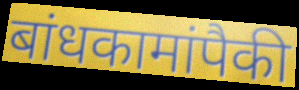
बांधकामांपैकी